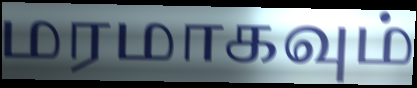
மரமாகவும்